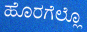
ಹೊರಗೆಲ್ಲೊ